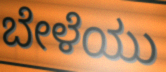
ಬೇಳೆಯು